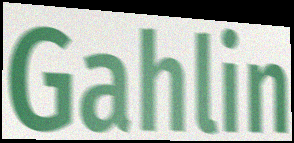
Gahlin